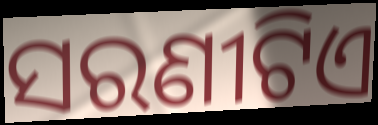
ସରଣୀଟିଏ